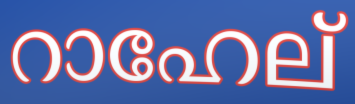
റാഹേല്